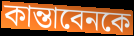
কান্তাবেনকে